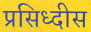
प्रसिध्दीस